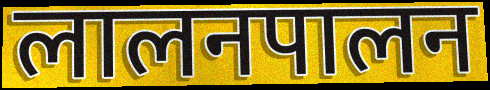
लालनपालन